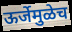
ऊर्जेमुळेच